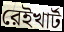
রেইখার্ট